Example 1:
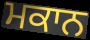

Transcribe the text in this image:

ਮਕਾਨ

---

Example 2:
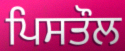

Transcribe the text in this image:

ਪਿਸਤੌਲ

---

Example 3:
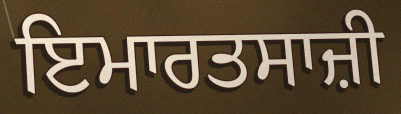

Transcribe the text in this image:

ਇਮਾਰਤਸਾਜ਼ੀ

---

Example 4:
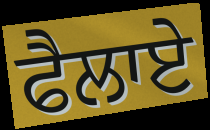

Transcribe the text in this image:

ਫੈਲਾਏ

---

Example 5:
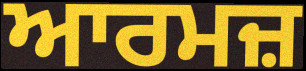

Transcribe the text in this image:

ਆਰਮਜ਼